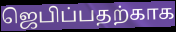
ஜெபிப்பதற்காக